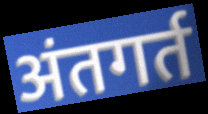
अंतगर्त